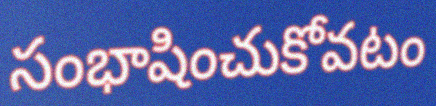
సంభాషించుకోవటం